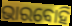
ଭାରବୋହି